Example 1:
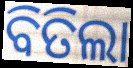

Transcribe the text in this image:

ବିତିଲା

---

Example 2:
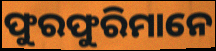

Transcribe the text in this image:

ଫୁରଫୁରିମାନେ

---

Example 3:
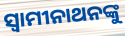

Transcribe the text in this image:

ସ୍ୱାମୀନାଥନଙ୍କୁ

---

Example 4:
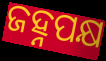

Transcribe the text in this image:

ଜହ୍ନପକ୍ଷ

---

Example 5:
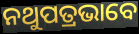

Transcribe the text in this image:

ନଥୁପତ୍ରଭାବେ